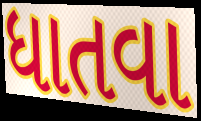
ધાતવા